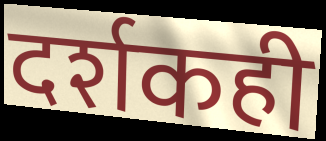
दर्शकही